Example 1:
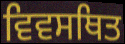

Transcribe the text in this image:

ਵਿਵਸਥਿਤ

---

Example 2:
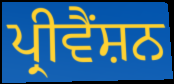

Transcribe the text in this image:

ਪ੍ਰੀਵੈਂਸ਼ਨ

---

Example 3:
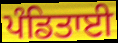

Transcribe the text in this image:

ਪੰਡਿਤਾਈ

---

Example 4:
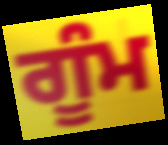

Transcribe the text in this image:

ਗੂੰਮ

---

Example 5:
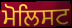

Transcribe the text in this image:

ਮੋਲਿਸਟ